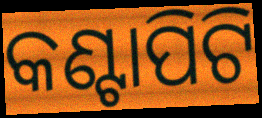
କଣ୍ଟାପିଟି